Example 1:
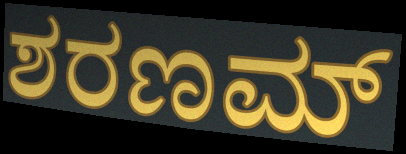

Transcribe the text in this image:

ಶರಣಮ್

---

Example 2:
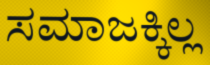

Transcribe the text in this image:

ಸಮಾಜಕ್ಕಿಲ್ಲ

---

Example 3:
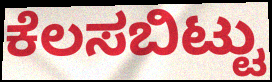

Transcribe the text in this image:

ಕೆಲಸಬಿಟ್ಟು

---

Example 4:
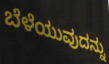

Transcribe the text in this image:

ಬೆಳೆಯುವುದನ್ನು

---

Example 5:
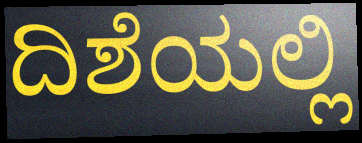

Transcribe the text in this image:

ದಿಶೆಯಲ್ಲಿ